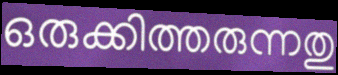
ഒരുക്കിത്തരുന്നതു